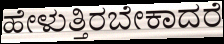
ಹೇಳುತ್ತಿರಬೇಕಾದರೆ